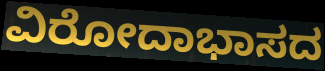
ವಿರೋದಾಭಾಸದ